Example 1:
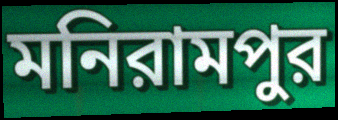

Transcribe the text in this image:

মনিরামপুর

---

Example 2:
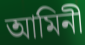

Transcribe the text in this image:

আমিনী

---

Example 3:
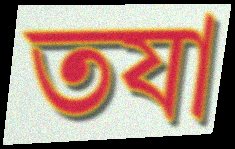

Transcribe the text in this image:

তযা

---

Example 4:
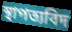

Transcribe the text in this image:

স্থাপত্যবিদ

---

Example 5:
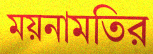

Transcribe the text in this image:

ময়নামতির